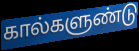
கால்களுண்டு